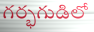
గర్భగుడిలో